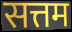
सत्तम